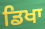
ਡਿਖਾ